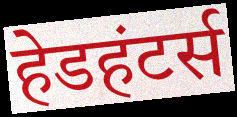
हेडहंटर्स